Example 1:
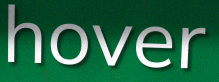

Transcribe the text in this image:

hover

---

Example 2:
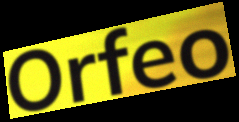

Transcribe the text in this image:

Orfeo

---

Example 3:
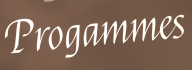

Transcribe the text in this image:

Progammes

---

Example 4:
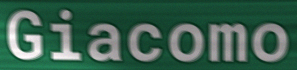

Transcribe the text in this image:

Giacomo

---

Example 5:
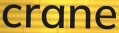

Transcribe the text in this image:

crane